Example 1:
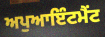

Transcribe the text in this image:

ਅਪੁਆਇੰਟਮੈਂਟ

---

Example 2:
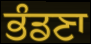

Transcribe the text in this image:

ਭੰਡਣਾ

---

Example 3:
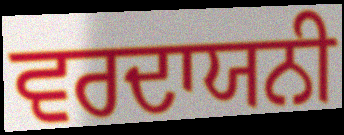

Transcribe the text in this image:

ਵਰਦਾਯਨੀ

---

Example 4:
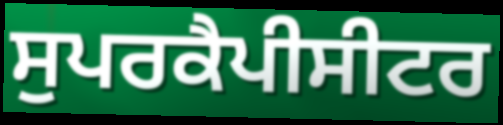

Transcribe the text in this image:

ਸੁਪਰਕੈਪੀਸੀਟਰ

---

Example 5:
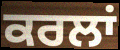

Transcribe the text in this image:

ਕਰਲਾਂ